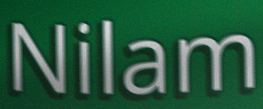
Nilam